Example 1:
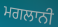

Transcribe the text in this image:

ਮਗਲਾਨੀ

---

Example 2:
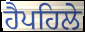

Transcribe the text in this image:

ਹੈਪਹਿਲੇ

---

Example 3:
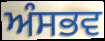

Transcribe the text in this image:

ਅੰਸਭਵ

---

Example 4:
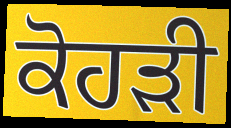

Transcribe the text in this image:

ਕੋਹੜੀ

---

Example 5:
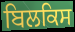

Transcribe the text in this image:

ਬਿਲਕਿਸ